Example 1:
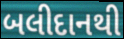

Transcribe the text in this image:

બલીદાનથી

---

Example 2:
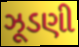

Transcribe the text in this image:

ઝૂડણી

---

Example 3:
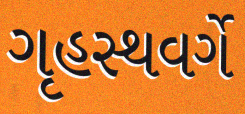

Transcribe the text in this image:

ગૃહસ્થવર્ગે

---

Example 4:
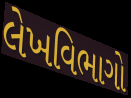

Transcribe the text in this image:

લેખવિભાગો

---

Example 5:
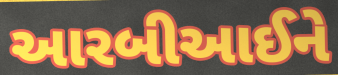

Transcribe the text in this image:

આરબીઆઈને